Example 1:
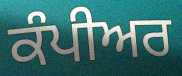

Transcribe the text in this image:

ਕੰਪੀਅਰ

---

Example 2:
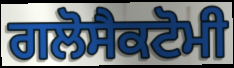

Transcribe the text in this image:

ਗਲੋਸੈਕਟੋਮੀ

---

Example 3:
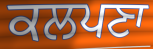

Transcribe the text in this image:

ਕਲਪਣਾ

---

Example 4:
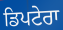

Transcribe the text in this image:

ਡਿਪਟੇਰਾ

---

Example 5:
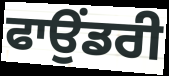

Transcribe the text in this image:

ਫਾਉਂਡਰੀ